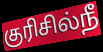
குரிசில்நீ